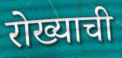
रोख्याची